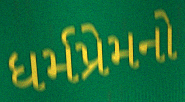
ધર્મપ્રેમનો